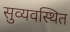
सुव्यवस्थित